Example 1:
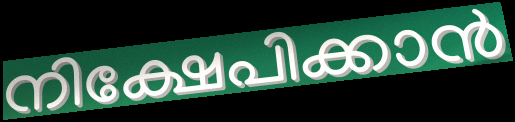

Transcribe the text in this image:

നിക്ഷേപിക്കാൻ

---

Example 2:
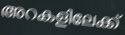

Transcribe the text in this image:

അറകളിലേക്ക്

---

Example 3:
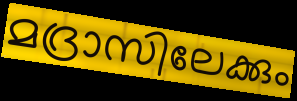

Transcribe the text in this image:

മദ്രാസിലേക്കും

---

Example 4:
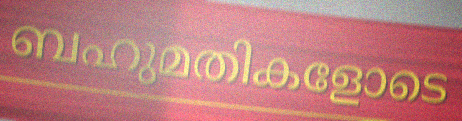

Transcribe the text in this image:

ബഹുമതികളോടെ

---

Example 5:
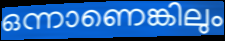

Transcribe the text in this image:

ഒന്നാണെങ്കിലും